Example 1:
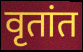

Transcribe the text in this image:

वृतांत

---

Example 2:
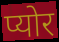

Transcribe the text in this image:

प्योर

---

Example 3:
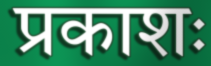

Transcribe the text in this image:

प्रकाशः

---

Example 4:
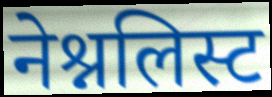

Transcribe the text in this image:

नेश्नलिस्ट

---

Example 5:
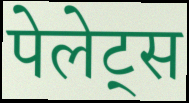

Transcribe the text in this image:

पेलेट्स